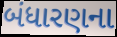
બંધારણના